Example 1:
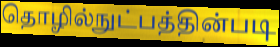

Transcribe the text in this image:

தொழில்நுட்பத்தின்படி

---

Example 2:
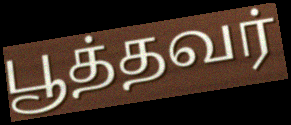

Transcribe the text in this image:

பூத்தவர்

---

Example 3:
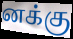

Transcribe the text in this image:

னக்கு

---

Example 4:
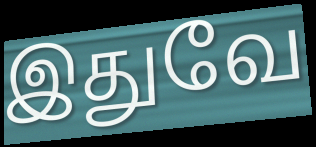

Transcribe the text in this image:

இதுவே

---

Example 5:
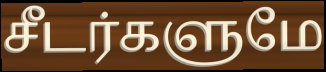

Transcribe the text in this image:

சீடர்களுமே